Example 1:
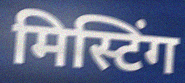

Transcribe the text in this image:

मिस्टिंग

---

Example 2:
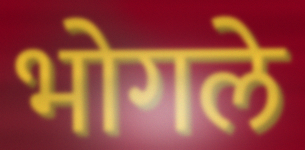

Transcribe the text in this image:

भोगले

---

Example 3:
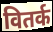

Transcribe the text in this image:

वितर्क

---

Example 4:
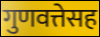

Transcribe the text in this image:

गुणवत्तेसह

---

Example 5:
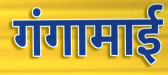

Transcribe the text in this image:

गंगामाई